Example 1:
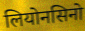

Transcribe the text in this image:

लियोनसिनो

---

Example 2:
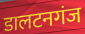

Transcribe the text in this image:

डालटनगंज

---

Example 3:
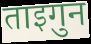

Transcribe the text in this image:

ताइगुन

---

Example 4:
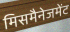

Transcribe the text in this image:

मिसमैनेजमेंट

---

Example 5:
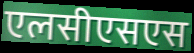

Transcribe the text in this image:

एलसीएसएस